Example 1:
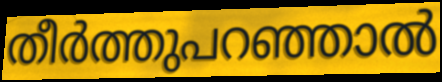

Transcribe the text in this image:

തീർത്തുപറഞ്ഞാൽ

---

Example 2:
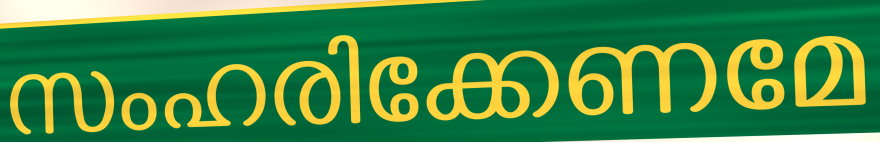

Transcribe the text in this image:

സംഹരിക്കേണമേ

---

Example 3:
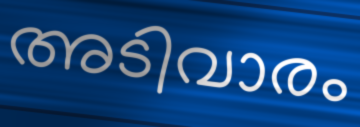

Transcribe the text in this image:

അടിവാരം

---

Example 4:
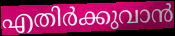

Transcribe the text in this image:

എതിർക്കുവാൻ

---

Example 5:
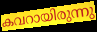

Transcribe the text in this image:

കവറായിരുന്നു